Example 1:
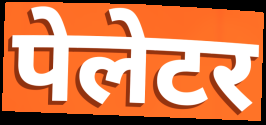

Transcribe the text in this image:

पेलेटर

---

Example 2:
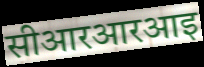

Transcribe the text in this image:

सीआरआरआइ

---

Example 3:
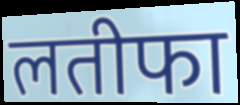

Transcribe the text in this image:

लतीफा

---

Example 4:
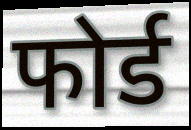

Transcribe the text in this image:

फोर्ड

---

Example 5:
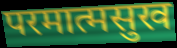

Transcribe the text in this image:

परमात्मसुख